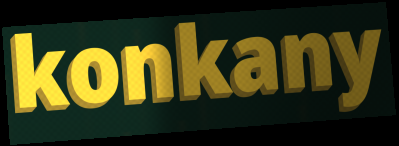
konkany